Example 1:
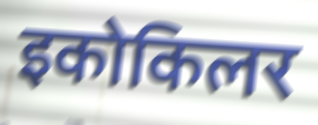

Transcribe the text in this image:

इकोकिलर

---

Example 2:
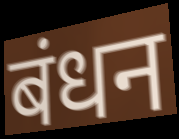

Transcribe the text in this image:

बंधन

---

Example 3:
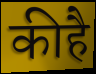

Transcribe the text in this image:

कीहै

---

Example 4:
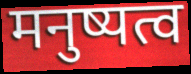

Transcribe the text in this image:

मनुष्यत्‍व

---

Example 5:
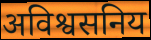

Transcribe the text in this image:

अविश्वसनिय